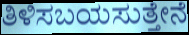
ತಿಳಿಸಬಯಸುತ್ತೇನೆ